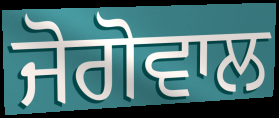
ਜੋਗੋਵਾਲ